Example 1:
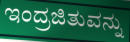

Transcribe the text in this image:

ಇಂದ್ರಜಿತುವನ್ನು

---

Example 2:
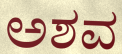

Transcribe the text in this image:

ಅಶವ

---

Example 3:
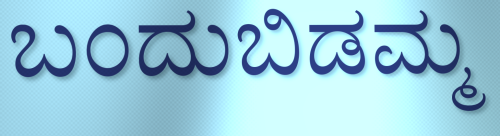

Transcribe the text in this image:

ಬಂದುಬಿಡಮ್ಮ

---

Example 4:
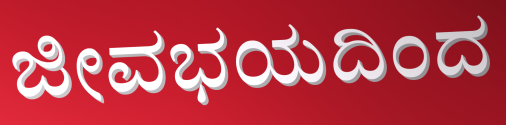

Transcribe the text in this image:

ಜೀವಭಯದಿಂದ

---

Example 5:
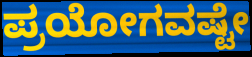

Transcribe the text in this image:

ಪ್ರಯೋಗವಷ್ಟೇ